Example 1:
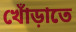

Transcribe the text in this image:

খোঁড়াতে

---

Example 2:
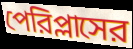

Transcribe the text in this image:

পেরিপ্লাসের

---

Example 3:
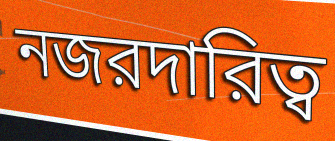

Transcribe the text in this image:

নজরদারিত্ব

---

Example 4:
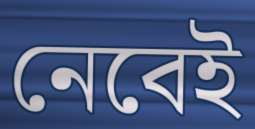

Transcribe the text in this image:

নেবেই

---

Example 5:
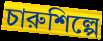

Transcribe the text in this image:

চারুশিল্পে